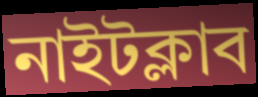
নাইটক্লাব